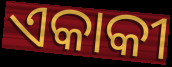
ଏକାକୀ